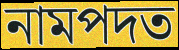
নামপদত